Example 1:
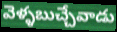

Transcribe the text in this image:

వెళ్ళబుచ్చేవాడు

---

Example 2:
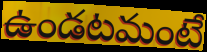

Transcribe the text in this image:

ఉండటమంటే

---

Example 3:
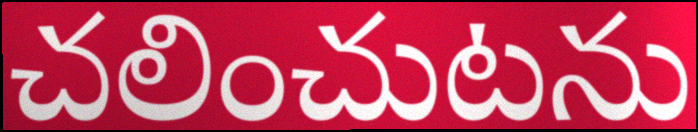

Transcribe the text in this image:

చలించుటను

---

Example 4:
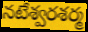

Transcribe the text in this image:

నటేశ్వరశర్మ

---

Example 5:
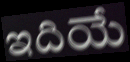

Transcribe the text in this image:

ఇదియే